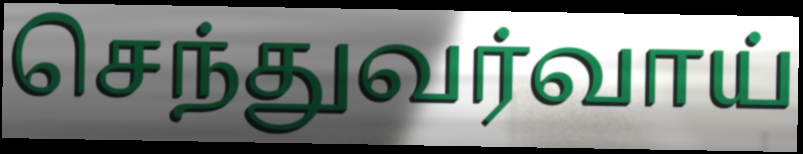
செந்துவர்வாய்